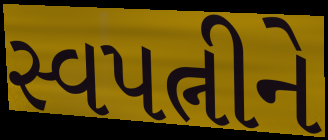
સ્વપત્નીને